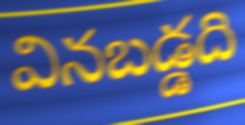
వినబడ్డది